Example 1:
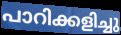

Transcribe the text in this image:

പാറിക്കളിച്ചു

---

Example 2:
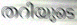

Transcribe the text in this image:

തറിയുടെ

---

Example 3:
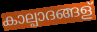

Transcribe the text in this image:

കാല്പാദങ്ങള്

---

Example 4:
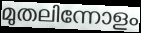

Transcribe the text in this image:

മുതലിന്നോളം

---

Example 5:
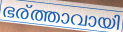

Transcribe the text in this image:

ഭര്ത്താവായി